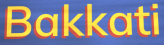
Bakkati